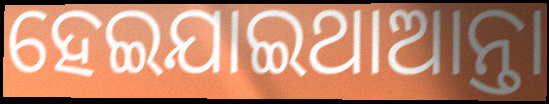
ହେଇଯାଇଥାଆନ୍ତା